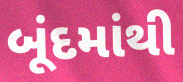
બૂંદમાંથી